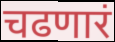
चढणारं